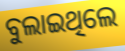
ବୁଲାଇଥିଲେ